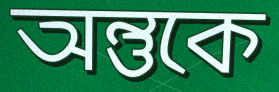
অন্তুকে